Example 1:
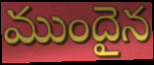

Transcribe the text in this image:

ముందైన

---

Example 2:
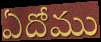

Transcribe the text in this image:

ఏదోము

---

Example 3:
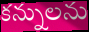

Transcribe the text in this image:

కన్నులను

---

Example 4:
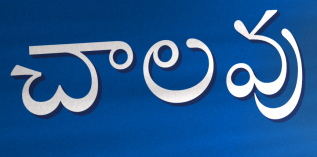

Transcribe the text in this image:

చాలవు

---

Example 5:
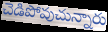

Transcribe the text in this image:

చెడిపోవుచున్నారు